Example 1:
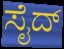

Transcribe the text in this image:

ಸೈದ್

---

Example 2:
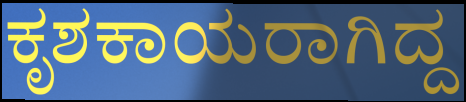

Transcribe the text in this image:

ಕೃಶಕಾಯರಾಗಿದ್ದ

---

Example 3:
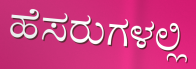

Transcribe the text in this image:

ಹೆಸರುಗಳಲ್ಲಿ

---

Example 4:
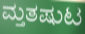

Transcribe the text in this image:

ಮ್ತತಷುಟ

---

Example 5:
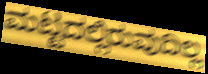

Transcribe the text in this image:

ಮಟ್ಟದಲ್ಲಿರುವುದಿಲ್ಲ